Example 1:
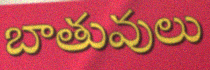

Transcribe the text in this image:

బాతువులు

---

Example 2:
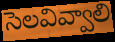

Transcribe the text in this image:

సెలవివ్వాలి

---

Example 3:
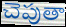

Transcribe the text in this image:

చెపుతా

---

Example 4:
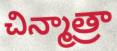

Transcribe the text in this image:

చిన్మాత్రా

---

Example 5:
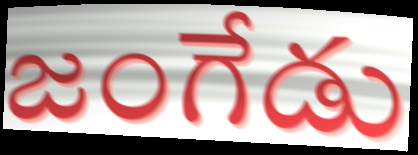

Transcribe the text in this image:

జంగేడు